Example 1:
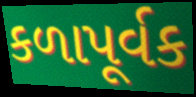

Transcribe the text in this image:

કળાપૂર્વક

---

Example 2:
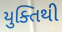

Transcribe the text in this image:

યુક્તિથી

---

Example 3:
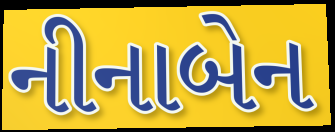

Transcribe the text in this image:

નીનાબેન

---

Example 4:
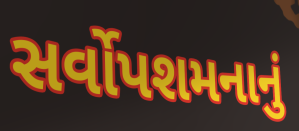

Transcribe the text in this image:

સર્વોપશમનાનું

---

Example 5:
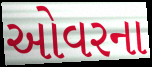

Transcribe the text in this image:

ઓવરના